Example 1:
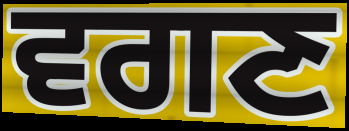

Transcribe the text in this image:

ਵਗਣ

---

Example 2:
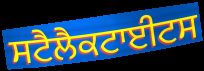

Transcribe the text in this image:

ਸਟੈਲੈਕਟਾਈਟਸ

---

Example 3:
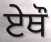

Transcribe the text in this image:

ਏਥੌ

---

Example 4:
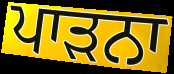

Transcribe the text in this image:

ਪਾੜਨਾ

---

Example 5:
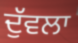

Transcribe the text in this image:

ਦੁੱਵਲਾ